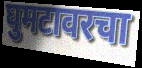
घुमटावरचा